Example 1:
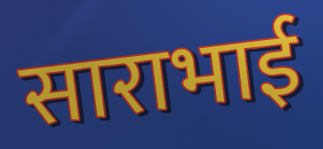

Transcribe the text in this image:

साराभाई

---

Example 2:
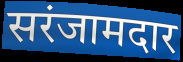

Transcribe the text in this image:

सरंजामदार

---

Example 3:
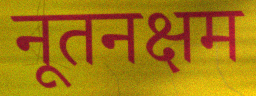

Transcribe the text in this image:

नूतनक्षम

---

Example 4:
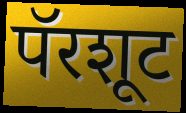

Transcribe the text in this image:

पॅरशूट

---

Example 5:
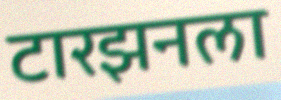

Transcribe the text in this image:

टारझनला